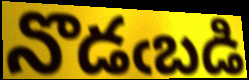
నొడఁబడి